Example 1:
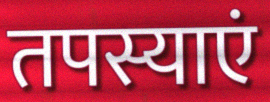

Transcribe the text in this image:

तपस्याएं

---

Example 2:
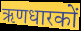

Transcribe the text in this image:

ऋणधारकों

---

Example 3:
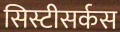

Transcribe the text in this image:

सिस्टीसर्कस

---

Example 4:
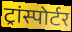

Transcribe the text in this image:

ट्रांस्पोर्टर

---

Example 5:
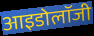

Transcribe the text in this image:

आइडोलॉजी